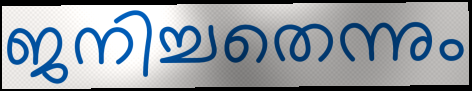
ജനിച്ചതെന്നും